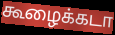
கூழைக்கடா